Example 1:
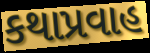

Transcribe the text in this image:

કથાપ્રવાહ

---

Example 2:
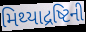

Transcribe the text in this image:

મિથ્યાદ્રષ્ટિની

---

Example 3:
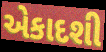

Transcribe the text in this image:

એકાદશી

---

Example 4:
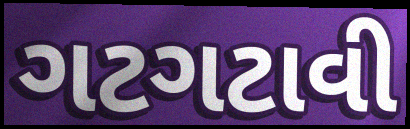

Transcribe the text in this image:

ગટગટાવી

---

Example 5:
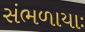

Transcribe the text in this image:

સંભળાયાઃ